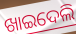
ଖାଇଦେଲି